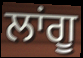
ਲਾਂਗੂ